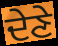
ਦੇਣੇ